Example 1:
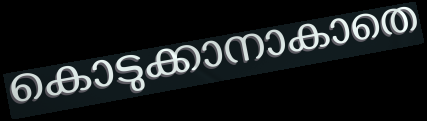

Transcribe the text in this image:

കൊടുക്കാനാകാതെ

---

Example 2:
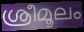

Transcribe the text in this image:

ശ്രീമൂലം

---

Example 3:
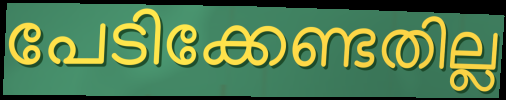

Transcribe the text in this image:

പേടിക്കേണ്ടതില്ല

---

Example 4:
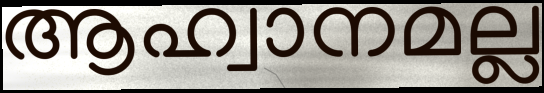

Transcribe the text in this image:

ആഹ്വാനമല്ല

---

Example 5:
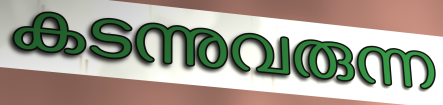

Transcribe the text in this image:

കടന്നുവരുന്ന